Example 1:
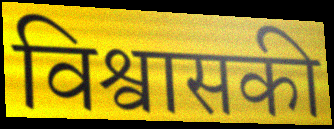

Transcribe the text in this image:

विश्वासकी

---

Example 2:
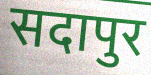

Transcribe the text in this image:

सदापुर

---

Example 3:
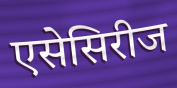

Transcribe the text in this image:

एसेसिरीज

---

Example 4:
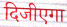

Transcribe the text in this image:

दिजीएगा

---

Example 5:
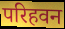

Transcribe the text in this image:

परिहवन